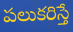
పలుకరిస్తే